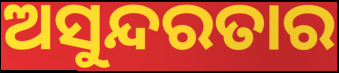
ଅସୁନ୍ଦରତାର